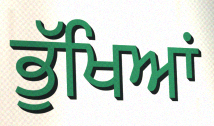
ਭੁੱਖਿਆਂ